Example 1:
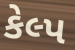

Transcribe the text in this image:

કેલ્પ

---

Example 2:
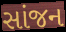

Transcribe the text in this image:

સાંજન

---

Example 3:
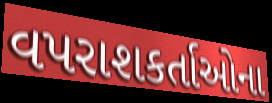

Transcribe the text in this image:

વપરાશકર્તાઓના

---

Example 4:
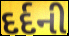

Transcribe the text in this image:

દર્દની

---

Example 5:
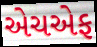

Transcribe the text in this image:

એચએફ